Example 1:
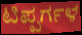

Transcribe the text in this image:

ಟಿಪ್ಪರ್ಗಳ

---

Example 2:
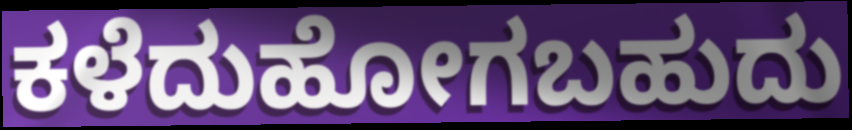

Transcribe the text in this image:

ಕಳೆದುಹೋಗಬಹುದು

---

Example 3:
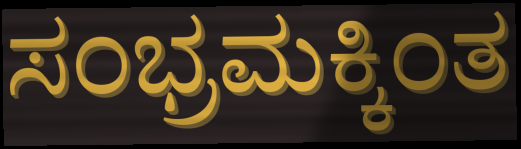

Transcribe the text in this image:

ಸಂಭ್ರಮಕ್ಕಿಂತ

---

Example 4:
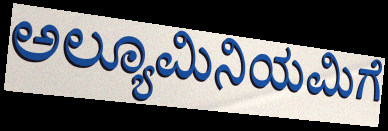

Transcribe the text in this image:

ಅಲ್ಯೂಮಿನಿಯಮಿಗೆ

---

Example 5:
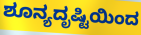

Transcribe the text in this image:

ಶೂನ್ಯದೃಷ್ಟಿಯಿಂದ